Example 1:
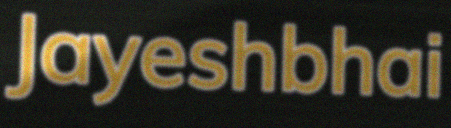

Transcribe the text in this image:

Jayeshbhai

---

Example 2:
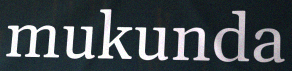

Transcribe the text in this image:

mukunda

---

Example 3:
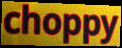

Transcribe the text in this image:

choppy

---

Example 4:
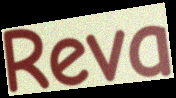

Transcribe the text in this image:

Reva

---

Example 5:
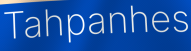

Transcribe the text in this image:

Tahpanhes